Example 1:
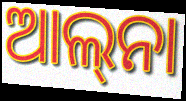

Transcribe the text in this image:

ଆଲ୍‍ନା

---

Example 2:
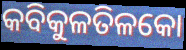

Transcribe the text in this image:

କବିକୁଳତିଳକୋ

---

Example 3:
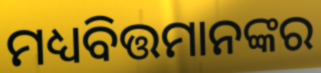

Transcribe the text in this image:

ମଧ୍ୟବିତ୍ତମାନଙ୍କର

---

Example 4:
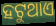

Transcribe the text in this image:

ହଟୁଥାଏ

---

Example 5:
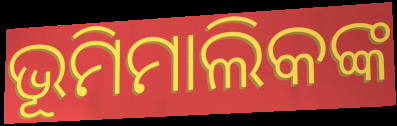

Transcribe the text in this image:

ଭୂମିମାଲିକଙ୍କ